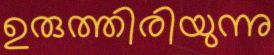
ഉരുത്തിരിയുന്നു